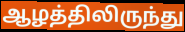
ஆழத்திலிருந்து